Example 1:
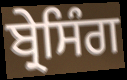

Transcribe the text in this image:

ਬ੍ਰੇਸਿੰਗ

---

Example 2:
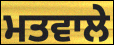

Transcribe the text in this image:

ਮਤਵਾਲੇ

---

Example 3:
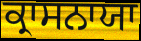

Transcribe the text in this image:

ਕ੍ਰਾਸਨਾਯਾ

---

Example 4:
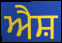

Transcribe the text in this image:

ਐਸ਼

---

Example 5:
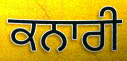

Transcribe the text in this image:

ਕਨਾਰੀ